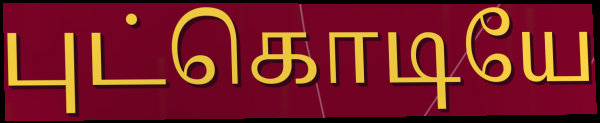
புட்கொடியே